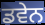
ਡਵੇਨ